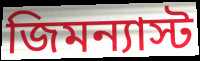
জিমন্যাস্ট